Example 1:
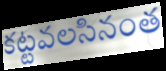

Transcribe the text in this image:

కట్టవలసినంత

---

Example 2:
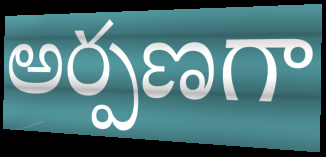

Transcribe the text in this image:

అర్పణగా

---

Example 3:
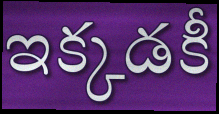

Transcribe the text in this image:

ఇక్కడకీ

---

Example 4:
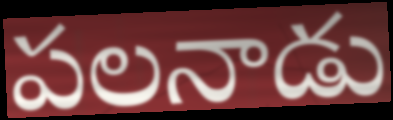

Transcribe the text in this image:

పలనాడు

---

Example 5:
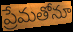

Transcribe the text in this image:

ప్రేమతోనూ